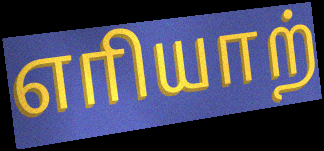
எரியாற்